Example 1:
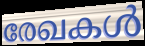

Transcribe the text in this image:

രേഖകൾ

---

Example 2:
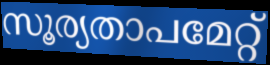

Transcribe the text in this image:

സൂര്യതാപമേറ്റ്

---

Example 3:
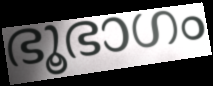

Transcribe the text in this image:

ഭൂഭാഗം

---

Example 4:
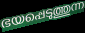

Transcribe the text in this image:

ഭയപ്പെടുത്തുന്ന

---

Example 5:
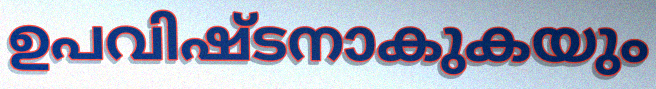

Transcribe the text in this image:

ഉപവിഷ്ടനാകുകയും